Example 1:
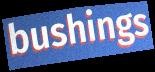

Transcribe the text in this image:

bushings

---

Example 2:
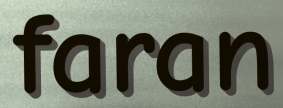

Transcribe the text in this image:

faran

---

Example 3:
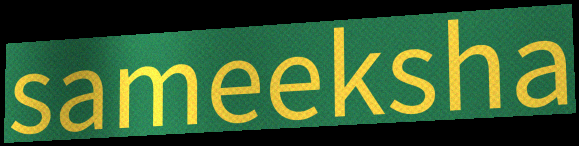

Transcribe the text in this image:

sameeksha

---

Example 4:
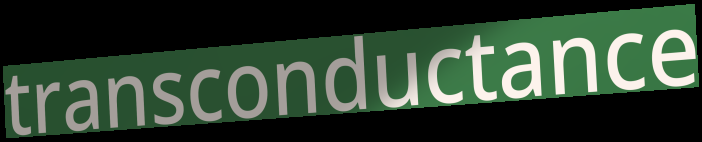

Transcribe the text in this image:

transconductance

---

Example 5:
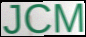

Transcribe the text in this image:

JCM